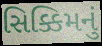
સિક્કિમનું